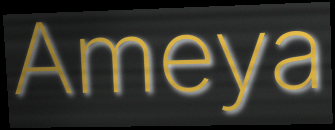
Ameya